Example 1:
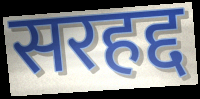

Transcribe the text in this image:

सरहद्द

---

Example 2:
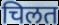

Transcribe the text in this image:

चिलत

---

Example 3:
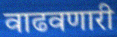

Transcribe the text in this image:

वाढवणारी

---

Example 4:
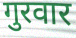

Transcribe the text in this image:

गुरवार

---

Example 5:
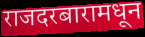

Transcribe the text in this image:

राजदरबारामधून